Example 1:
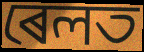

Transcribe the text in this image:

ৰেলত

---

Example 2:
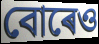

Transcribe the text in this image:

বোৰেও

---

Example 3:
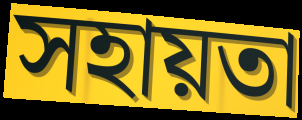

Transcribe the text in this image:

সহায়তা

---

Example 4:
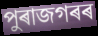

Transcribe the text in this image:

পুৰাজগৰৰ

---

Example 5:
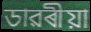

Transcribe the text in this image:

ডাৱৰীয়া